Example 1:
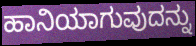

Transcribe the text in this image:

ಹಾನಿಯಾಗುವುದನ್ನು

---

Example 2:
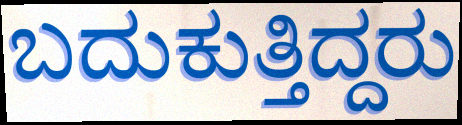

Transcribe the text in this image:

ಬದುಕುತ್ತಿದ್ದರು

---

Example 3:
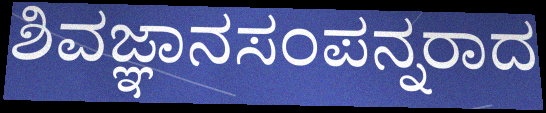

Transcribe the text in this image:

ಶಿವಜ್ಞಾನಸಂಪನ್ನರಾದ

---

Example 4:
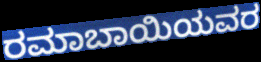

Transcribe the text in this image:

ರಮಾಬಾಯಿಯವರ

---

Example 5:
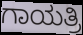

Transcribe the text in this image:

ಗಾಯತ್ರಿ